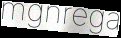
mgnrega